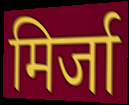
मिर्जा